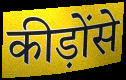
कीड़ोंसे